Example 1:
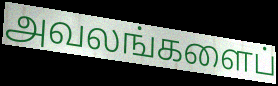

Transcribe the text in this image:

அவலங்களைப்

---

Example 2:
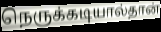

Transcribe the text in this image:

நெருக்கடியால்தான்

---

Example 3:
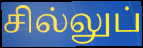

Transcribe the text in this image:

சில்லுப்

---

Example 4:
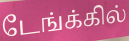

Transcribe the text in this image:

டேங்க்கில்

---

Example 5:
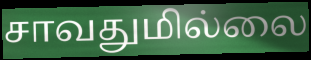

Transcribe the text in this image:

சாவதுமில்லை